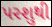
પરશુથી